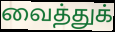
வைத்துக்